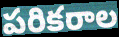
పరికరాల